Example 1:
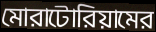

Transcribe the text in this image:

মোরাটোরিয়ামের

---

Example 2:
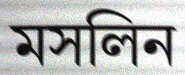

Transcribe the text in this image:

মসলিন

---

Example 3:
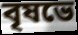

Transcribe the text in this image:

বৃষভে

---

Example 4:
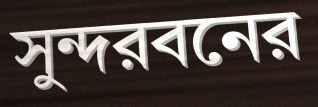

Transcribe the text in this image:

সুন্দরবনের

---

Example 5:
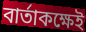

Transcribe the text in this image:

বার্তাকক্ষেই